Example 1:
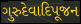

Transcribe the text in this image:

ગુરુદેવાદિપૂજન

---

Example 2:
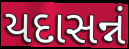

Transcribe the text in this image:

યદાસન્નં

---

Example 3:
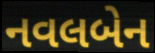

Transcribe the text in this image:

નવલબેન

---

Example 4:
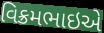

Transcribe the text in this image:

વિક્રમભાઇએ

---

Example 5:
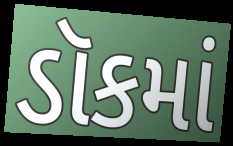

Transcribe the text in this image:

ડૉકમાં